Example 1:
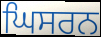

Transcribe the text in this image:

ਘਿਸਰਨ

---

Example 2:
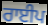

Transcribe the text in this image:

ਰਾਈਪ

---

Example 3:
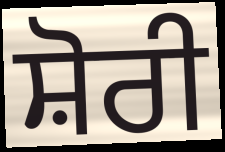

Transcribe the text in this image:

ਸ਼ੋਰੀ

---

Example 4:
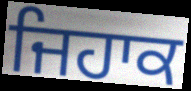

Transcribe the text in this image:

ਜਿਹਾਕ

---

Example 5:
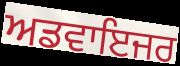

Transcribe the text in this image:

ਅਡਵਾਇਜਰ